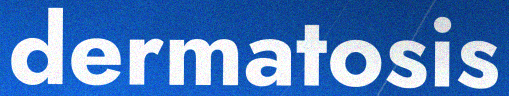
dermatosis